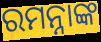
ରମନ୍ନାଙ୍କ